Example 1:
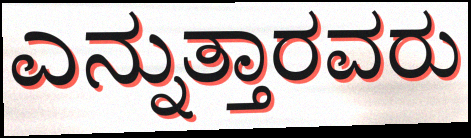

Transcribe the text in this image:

ಎನ್ನುತ್ತಾರವರು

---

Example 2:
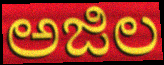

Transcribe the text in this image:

ಅಜಿಲ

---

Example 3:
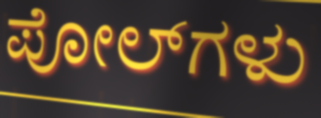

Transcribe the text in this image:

ಪೋಲ್‌ಗಳು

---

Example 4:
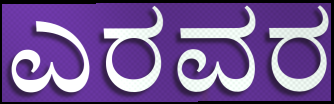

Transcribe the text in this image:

ಎರವರ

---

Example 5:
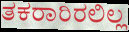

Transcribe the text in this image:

ತಕರಾರಿರಲಿಲ್ಲ